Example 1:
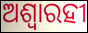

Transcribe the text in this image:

ଅଶ୍ୱାରହୀ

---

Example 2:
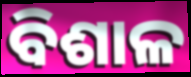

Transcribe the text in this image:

ବିଶାଳ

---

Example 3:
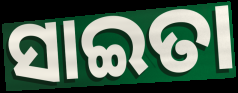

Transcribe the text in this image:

ସାଇତା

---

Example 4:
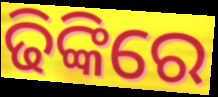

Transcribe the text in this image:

ଢିଙ୍କିରେ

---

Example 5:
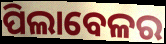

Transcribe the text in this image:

ପିଲାବେଳର